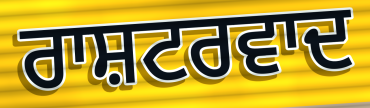
ਰਾਸ਼ਟਰਵਾਦ